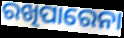
ରଖିପାରେନା